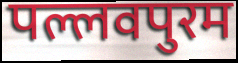
पल्लवपुरम